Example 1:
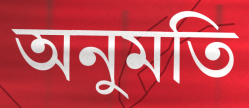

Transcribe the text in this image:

অনুমতি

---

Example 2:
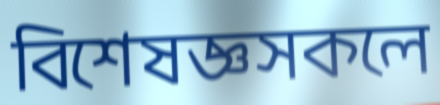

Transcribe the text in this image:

বিশেষজ্ঞসকলে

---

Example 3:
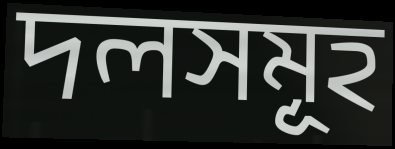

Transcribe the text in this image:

দলসমূহ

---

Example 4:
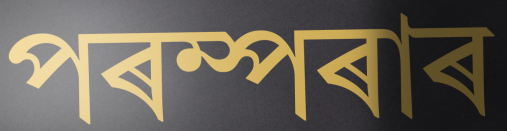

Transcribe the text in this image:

পৰম্পৰাৰ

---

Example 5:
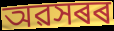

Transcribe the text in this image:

অৱসৰৰ